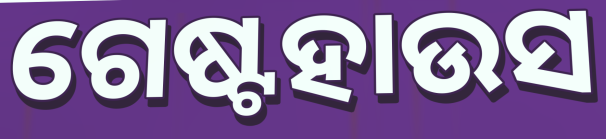
ଗେଷ୍ଟହାଉସ